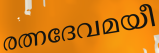
രത്നദേവമയീ